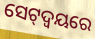
ସେଟ୍‌ଦ୍ଵୟରେ